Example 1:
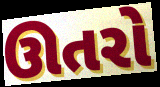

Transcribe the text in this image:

ઊતરો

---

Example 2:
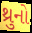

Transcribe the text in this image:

થ્રુનો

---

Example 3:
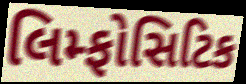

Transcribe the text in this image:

લિમ્ફોસિટિક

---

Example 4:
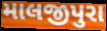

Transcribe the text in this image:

માલજીપુરા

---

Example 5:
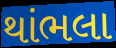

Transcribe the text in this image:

થાંભલા